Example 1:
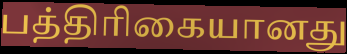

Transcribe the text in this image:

பத்திரிகையானது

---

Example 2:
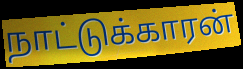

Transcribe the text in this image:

நாட்டுக்காரன்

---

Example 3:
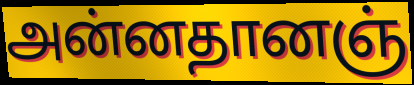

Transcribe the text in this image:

அன்னதானஞ்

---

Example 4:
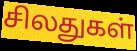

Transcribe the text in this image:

சிலதுகள்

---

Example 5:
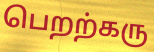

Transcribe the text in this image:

பெறற்கரு